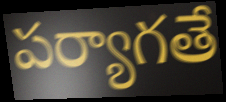
పర్యాగతే